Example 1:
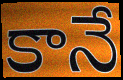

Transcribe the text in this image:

కానే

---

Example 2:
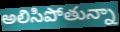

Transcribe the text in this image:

అలిసిపోతున్నా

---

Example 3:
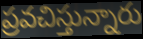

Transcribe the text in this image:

ప్రవచిస్తున్నారు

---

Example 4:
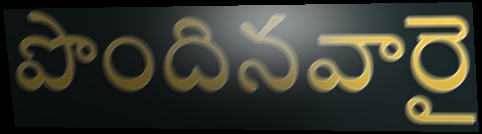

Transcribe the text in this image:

పొందినవారై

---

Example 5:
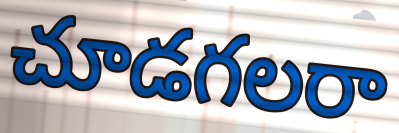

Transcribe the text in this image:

చూడగలరా